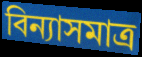
বিন্যাসমাত্র